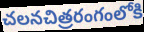
చలనచిత్రరంగంలోకి